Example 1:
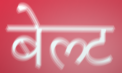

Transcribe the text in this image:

बेल्ट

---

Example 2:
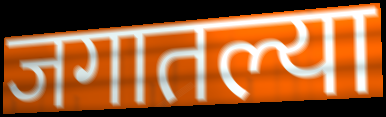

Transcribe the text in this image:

जगातल्या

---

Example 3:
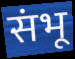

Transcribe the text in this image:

संभू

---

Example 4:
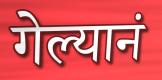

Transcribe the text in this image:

गेल्यानं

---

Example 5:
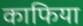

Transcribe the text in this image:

काफिया